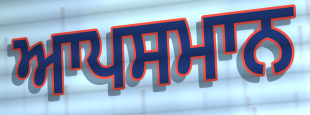
ਆਪਸਮਾਨ